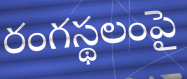
రంగస్థలంపై